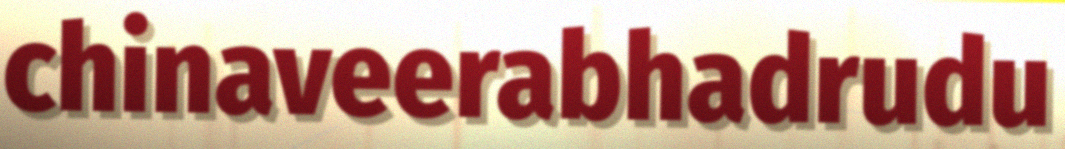
chinaveerabhadrudu